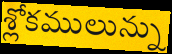
శ్లోకములున్ను